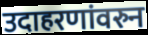
उदाहरणांवरुन